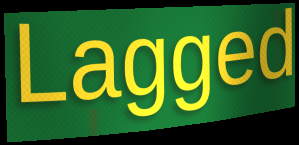
Lagged